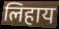
लिहाय